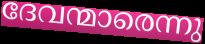
ദേവന്മാരെന്നു